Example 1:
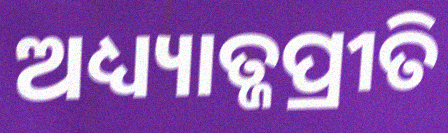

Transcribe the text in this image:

ଅଧ୍ୟ୍ୟାତ୍ଜପ୍ରୀତି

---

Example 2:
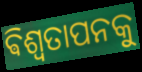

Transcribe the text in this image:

ଵିଶ୍ଵତାପନକୁ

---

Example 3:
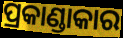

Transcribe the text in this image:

ପ୍ରକାଣ୍ଡାକାର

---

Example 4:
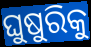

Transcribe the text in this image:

ଘୁଷୁରିକୁ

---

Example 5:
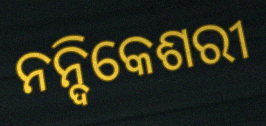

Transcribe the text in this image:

ନନ୍ଦିକେଶରୀ